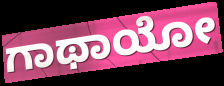
ಗಾಥಾಯೋ